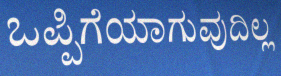
ಒಪ್ಪಿಗೆಯಾಗುವುದಿಲ್ಲ